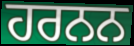
ਹਰਨਨ